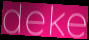
deke